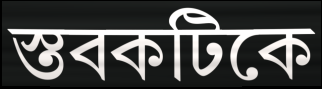
স্তবকটিকে